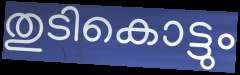
തുടികൊട്ടും